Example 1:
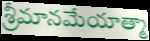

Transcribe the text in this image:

శ్రీమానమేయాత్మా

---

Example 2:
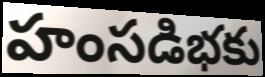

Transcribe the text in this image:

హంసడిభకు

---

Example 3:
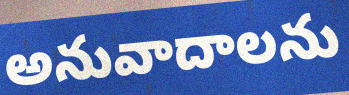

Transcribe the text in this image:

అనువాదాలను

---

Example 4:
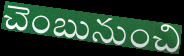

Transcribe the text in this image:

చెంబునుంచి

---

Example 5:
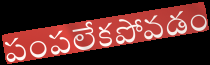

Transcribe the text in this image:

పంపలేకపోవడం